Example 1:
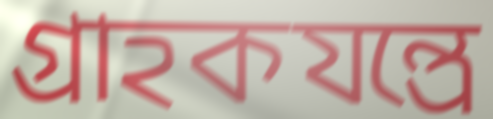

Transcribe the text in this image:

গ্রাহকযন্ত্রে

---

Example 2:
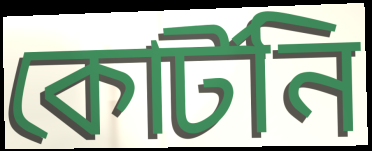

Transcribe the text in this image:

কোর্টনি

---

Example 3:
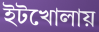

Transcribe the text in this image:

ইটখোলায়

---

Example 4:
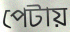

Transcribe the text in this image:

পেটায়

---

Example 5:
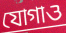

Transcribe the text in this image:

যোগাও